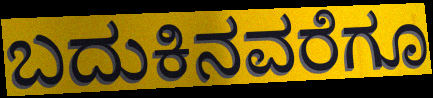
ಬದುಕಿನವರೆಗೂ